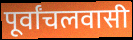
पूर्वांचलवासी